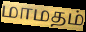
மாமதம்